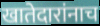
खातेदारांनाच